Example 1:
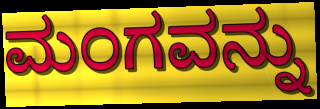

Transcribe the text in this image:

ಮಂಗವನ್ನು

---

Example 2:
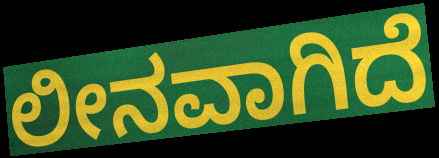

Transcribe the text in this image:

ಲೀನವಾಗಿದೆ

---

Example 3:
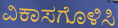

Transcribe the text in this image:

ವಿಕಾಸಗೊಳಿಸಿ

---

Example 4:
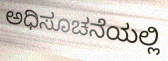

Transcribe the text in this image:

ಅಧಿಸೂಚನೆಯಲ್ಲಿ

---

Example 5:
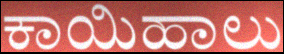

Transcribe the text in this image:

ಕಾಯಿಹಾಲು